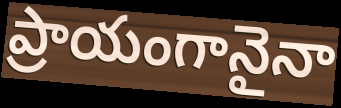
ప్రాయంగానైనా